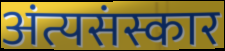
अंत्यसंस्कार